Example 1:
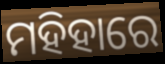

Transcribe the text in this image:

ମହିହାରେ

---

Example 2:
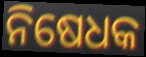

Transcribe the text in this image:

ନିଷେଧକ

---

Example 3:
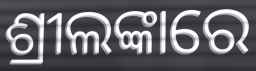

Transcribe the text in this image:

ଶ୍ରୀଲଙ୍କାରେ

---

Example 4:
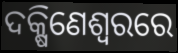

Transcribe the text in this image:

ଦକ୍ଷିଣେଶ୍ୱରରେ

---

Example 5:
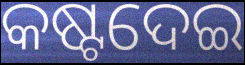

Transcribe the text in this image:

କଷ୍ଟଦେଇ